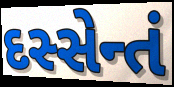
દસ્સેન્તં